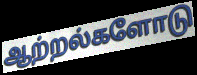
ஆற்றல்களோடு